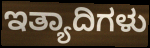
ಇತ್ಯಾದಿಗಳು